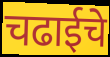
चढाईचे